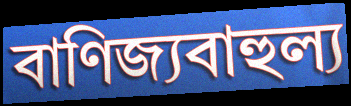
বাণিজ্যবাহুল্য